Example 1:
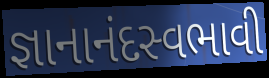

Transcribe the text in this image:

જ્ઞાનાનંદસ્વભાવી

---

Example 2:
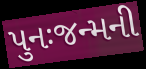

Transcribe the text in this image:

પુનઃજન્મની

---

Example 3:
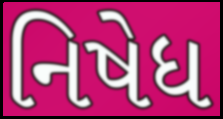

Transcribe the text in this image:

નિષેધ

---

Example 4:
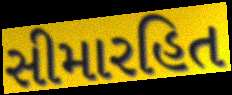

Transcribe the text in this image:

સીમારહિત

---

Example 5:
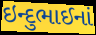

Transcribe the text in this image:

ઇન્દુભાઈનાં